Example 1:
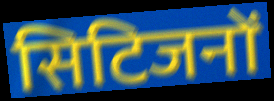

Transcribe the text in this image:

सिटिजनों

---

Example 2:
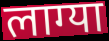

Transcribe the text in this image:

लाग्या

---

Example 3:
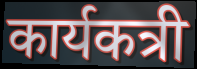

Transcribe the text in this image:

कार्यकत्री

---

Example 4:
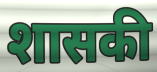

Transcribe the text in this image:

शासकी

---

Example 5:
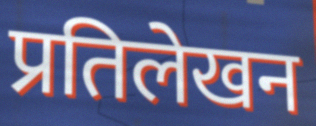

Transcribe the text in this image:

प्रतिलेखन